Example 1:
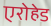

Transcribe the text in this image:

एरोहेड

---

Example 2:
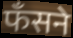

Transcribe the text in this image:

फँसने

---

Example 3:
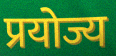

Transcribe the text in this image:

प्रयोज्य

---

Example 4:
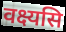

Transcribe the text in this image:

वक्ष्यसि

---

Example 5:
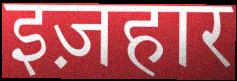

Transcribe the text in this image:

इज़हार